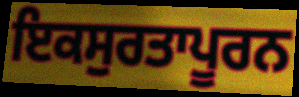
ਇਕਸੁਰਤਾਪੂਰਨ